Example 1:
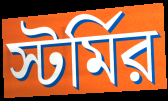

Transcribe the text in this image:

স্টর্মির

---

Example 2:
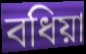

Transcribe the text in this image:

বধিয়া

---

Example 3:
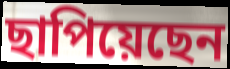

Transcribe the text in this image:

ছাপিয়েছেন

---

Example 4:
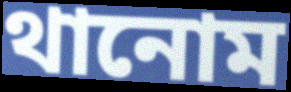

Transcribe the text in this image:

থানোম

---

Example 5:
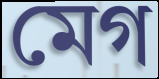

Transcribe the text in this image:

মেগ